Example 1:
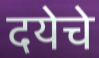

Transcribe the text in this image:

दयेचे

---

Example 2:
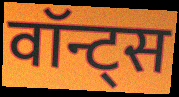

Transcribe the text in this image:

वॉन्ट्स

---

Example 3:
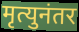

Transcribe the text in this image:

मृत्युनंतर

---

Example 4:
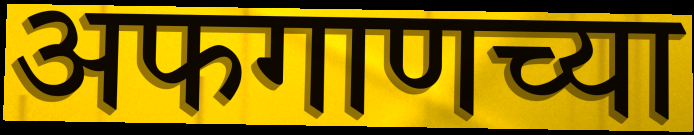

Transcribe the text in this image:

अफगाणच्या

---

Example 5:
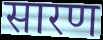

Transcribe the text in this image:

सारण